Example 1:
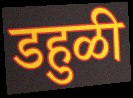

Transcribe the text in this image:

डहुळी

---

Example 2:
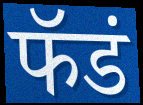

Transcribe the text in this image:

फॅडं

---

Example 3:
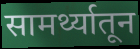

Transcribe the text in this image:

सामर्थ्यातून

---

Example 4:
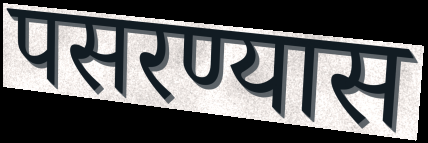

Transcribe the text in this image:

पसरण्यास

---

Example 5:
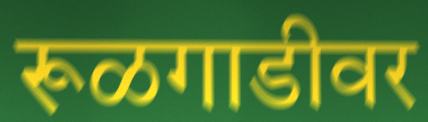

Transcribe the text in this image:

रूळगाडीवर